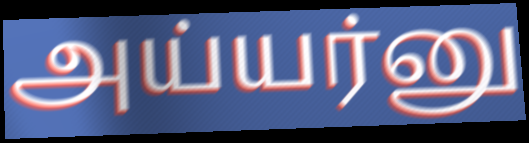
அய்யர்னு